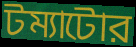
টম্যাটোর